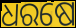
ଧରଷେ